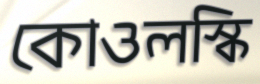
কোওলস্কি